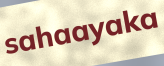
sahaayaka